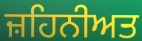
ਜ਼ਹਿਨੀਅਤ